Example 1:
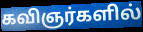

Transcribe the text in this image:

கவிஞர்களில்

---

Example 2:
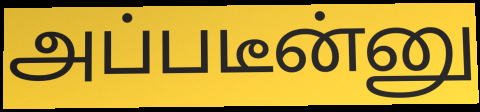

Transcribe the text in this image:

அப்படீன்னு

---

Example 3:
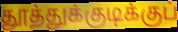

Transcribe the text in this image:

தூத்துக்குடிக்குப்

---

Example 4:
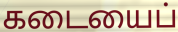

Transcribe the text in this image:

கடையைப்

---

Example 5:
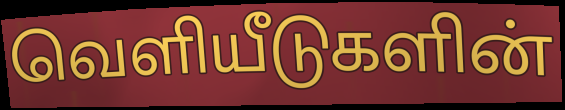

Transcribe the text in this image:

வெளியீடுகளின்